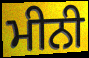
ਮੀਨੀ